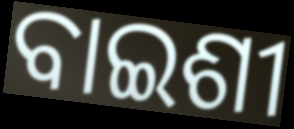
ବାଇଶୀ